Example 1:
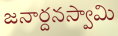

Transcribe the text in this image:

జనార్దనస్వామి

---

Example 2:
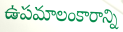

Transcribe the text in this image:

ఉపమాలంకారాన్ని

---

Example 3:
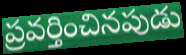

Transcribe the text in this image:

ప్రవర్తించినపుడు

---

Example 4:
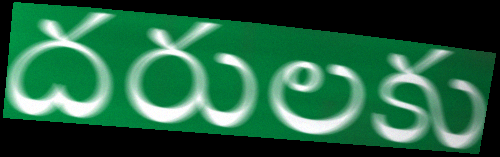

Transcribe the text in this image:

దరులకు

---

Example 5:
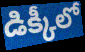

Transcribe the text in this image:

డిక్కీలో